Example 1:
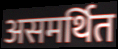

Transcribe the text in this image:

असमर्थित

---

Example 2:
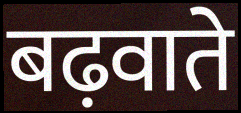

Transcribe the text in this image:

बढ़वाते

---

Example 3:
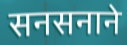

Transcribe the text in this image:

सनसनाने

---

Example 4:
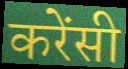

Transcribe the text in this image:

करेंसी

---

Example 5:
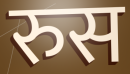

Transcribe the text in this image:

रुस